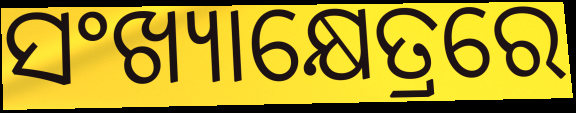
ସଂଖ୍ୟାକ୍ଷେତ୍ରରେ